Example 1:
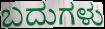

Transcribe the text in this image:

ಬದುಗಳು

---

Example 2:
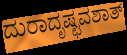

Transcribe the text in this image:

ದುರಾದೃಷ್ಟವಶಾತ್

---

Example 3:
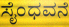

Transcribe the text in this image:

ಸೈಂಧವನೆ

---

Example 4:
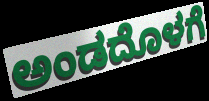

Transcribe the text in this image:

ಅಂಡದೊಳಗೆ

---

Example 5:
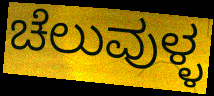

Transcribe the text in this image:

ಚೆಲುವುಳ್ಳ